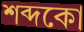
শব্দকো